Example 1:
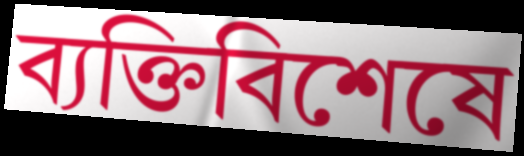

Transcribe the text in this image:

ব্যক্তিবিশেষে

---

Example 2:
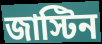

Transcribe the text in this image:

জাস্টিন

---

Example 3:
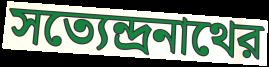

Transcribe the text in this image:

সত্যেন্দ্রনাথের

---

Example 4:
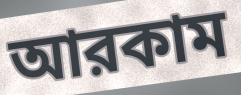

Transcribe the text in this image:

আরকাম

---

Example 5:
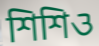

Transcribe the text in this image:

শিশিও